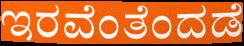
ಇರವೆಂತೆಂದಡೆ